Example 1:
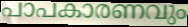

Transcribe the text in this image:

പാപകാരണവും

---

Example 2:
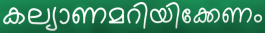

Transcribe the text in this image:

കല്യാണമറിയിക്കേണം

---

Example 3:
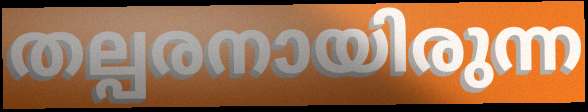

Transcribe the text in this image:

തല്പരനായിരുന്ന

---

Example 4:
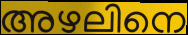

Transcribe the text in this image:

അഴലിനെ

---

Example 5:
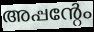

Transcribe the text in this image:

അപ്പന്റേം